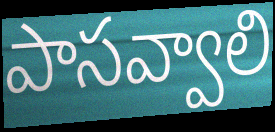
పాసవ్వాలి